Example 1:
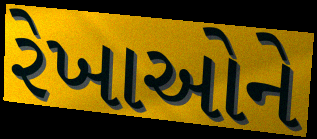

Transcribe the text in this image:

રેખાઓને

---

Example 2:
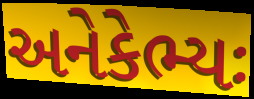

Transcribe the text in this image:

અનેકેભ્યઃ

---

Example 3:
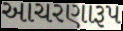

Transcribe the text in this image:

આચરણારૂપ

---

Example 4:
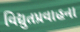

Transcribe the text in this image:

વિદ્યુતપ્રવાહના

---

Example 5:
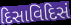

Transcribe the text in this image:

દિસાવિદિસં